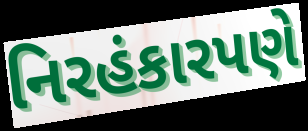
નિરહંકારપણે